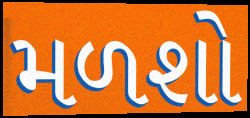
મળશો